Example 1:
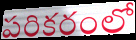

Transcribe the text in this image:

పరికరంలో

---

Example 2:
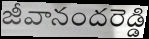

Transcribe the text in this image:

జీవానందరెడ్డి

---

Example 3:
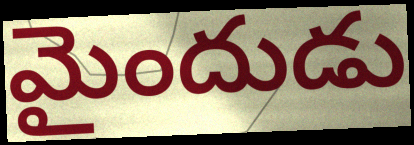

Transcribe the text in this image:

మైందుడు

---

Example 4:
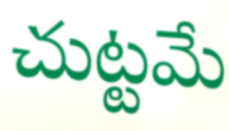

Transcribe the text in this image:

చుట్టమే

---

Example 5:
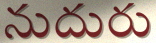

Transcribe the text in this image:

నుదురు